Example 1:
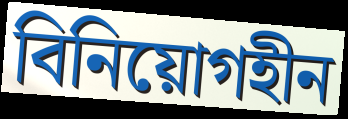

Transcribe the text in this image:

বিনিয়োগহীন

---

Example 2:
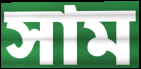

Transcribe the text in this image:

সাম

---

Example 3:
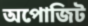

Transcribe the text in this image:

অপোজিট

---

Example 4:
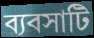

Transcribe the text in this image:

ব্যবসাটি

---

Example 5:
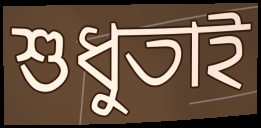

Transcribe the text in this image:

শুধুতাই